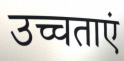
उच्चताएं